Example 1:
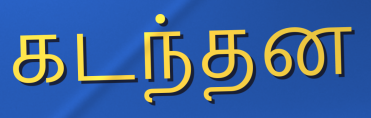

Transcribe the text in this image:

கடந்தன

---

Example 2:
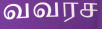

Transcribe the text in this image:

வவரச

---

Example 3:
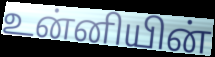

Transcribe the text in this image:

உன்னியின்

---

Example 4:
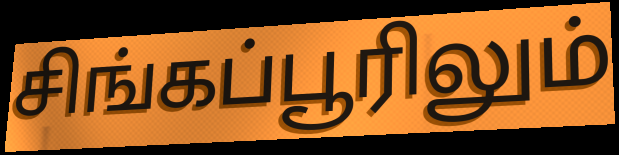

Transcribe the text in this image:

சிங்கப்பூரிலும்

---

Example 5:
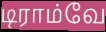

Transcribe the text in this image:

டிராம்வே